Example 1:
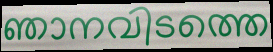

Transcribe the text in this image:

ഞാനവിടത്തെ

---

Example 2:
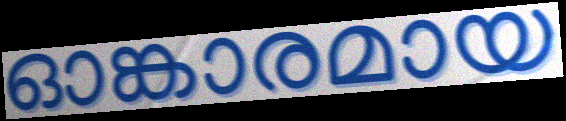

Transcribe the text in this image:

ഓങ്കാരമായ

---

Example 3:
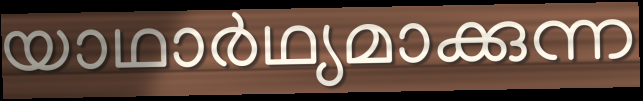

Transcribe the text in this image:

യാഥാർഥ്യമാക്കുന്ന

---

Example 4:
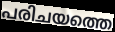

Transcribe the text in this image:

പരിചയത്തെ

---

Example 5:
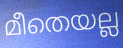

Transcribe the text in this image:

മീതെയല്ല